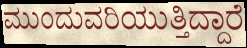
ಮುಂದುವರಿಯುತ್ತಿದ್ದಾರೆ